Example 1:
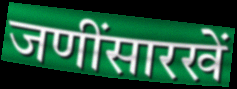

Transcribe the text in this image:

जणींसारखें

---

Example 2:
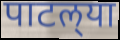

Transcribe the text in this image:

पाटल्या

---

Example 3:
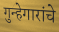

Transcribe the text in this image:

गुन्हेगारांचे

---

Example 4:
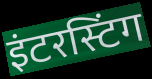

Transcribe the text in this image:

इंटरस्टिंग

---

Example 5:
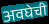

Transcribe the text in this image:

अवघेची